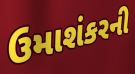
ઉમાશંકરની